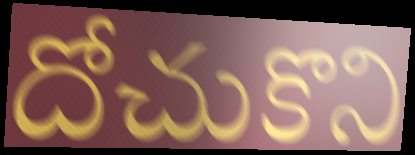
దోచుకొని